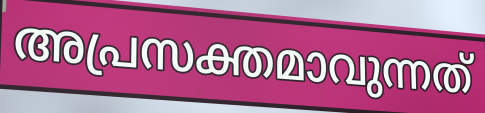
അപ്രസക്തമാവുന്നത്